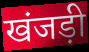
खंजड़ी